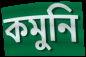
কমুনি